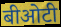
बीओटी